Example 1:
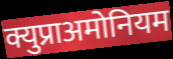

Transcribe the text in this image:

क्युप्राअमोनियम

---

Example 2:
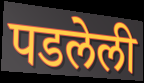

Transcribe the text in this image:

पडलेली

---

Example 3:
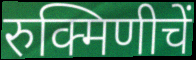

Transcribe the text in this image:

रुक्मिणीचें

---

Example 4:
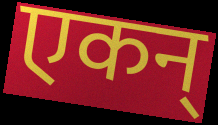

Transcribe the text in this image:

एकन्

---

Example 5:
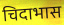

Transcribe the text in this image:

चिदाभास